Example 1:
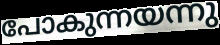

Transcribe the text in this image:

പോകുന്നയന്നു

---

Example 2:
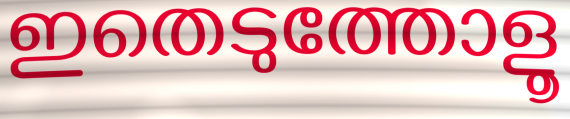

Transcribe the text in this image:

ഇതെടുത്തോളൂ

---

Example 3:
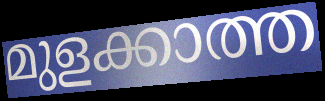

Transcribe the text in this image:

മുളക്കാത്ത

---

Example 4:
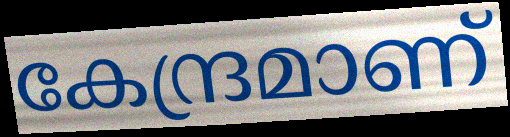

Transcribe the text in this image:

കേന്ദ്രമാണ്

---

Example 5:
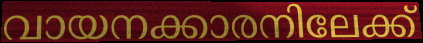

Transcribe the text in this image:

വായനക്കാരനിലേക്ക്